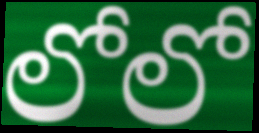
లోలో